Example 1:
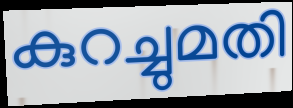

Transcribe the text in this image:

കുറച്ചുമതി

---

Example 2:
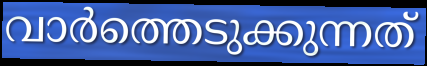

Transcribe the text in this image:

വാർത്തെടുക്കുന്നത്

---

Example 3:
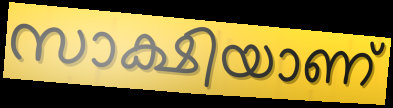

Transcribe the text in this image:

സാക്ഷിയാണ്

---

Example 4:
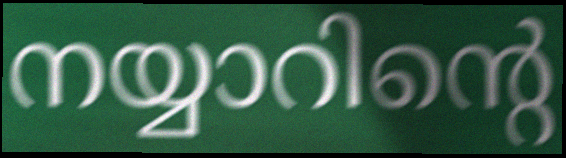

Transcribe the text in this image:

നയ്യാറിന്റെ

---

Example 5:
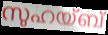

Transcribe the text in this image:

സുഹയ്ബ്